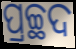
ପ୍ରଚ୍ଛଦ